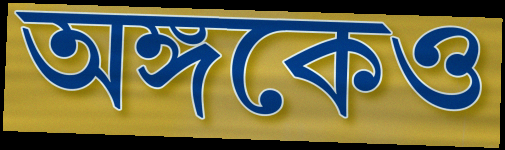
অঙ্গকেও